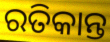
ରତିକାନ୍ତ